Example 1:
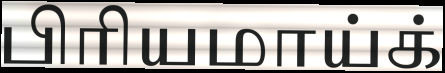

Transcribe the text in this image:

பிரியமாய்க்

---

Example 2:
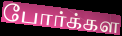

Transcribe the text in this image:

போர்க்கள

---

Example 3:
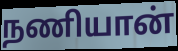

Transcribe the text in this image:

நணியான்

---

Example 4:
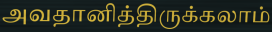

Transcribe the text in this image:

அவதானித்திருக்கலாம்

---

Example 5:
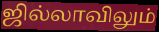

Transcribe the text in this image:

ஜில்லாவிலும்